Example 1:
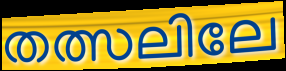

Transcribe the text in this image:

തത്സലിലേ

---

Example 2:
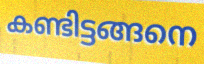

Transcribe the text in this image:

കണ്ടിട്ടങ്ങനെ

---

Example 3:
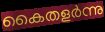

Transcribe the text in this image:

കൈതളർന്നു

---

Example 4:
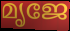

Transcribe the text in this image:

മൃജേ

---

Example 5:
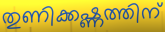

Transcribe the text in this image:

തുണിക്കഷ്ണത്തിന്